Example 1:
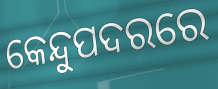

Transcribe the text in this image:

କେନ୍ଦୁପଦରରେ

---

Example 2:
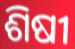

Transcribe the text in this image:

ଶିଷୀ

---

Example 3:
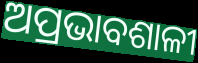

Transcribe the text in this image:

ଅପ୍ରଭାବଶାଳୀ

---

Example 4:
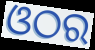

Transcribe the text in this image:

ଓଠର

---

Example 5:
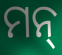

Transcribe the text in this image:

ମନ୍